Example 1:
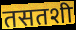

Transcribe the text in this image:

तसतशी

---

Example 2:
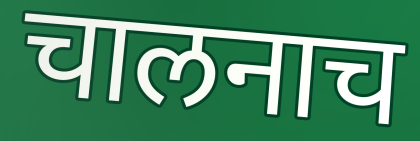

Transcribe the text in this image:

चालनाच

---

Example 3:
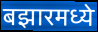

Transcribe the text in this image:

बझारमध्ये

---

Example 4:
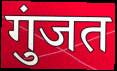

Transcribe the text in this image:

गुंजत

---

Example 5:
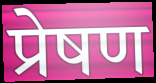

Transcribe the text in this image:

प्रेषण